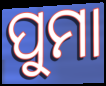
ପୁମା